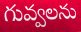
గువ్వలను